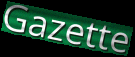
Gazette